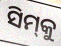
ସିମ୍‌କୁ